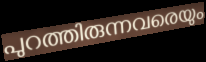
പുറത്തിരുന്നവരെയും